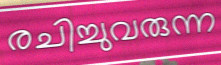
രചിച്ചുവരുന്ന